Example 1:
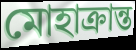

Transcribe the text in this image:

মোহাক্রান্ত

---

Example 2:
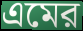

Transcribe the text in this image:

এমের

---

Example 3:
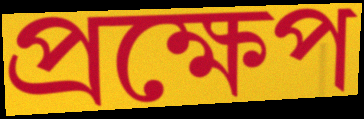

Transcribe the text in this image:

প্রক্ষেপ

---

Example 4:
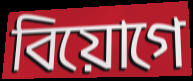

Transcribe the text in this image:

বিয়োগে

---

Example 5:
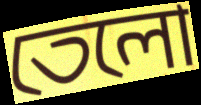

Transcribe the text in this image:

তেলো